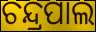
ଚନ୍ଦ୍ରପାଲ